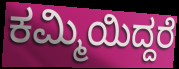
ಕಮ್ಮಿಯಿದ್ದರೆ